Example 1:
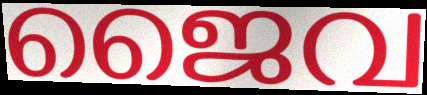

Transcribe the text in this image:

ജൈവ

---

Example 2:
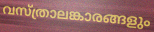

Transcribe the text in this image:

വസ്ത്രാലങ്കാരങ്ങളും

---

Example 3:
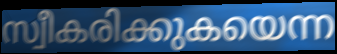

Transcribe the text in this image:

സ്വീകരിക്കുകയെന്ന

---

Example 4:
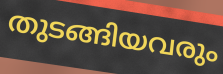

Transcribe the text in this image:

തുടങ്ങിയവരും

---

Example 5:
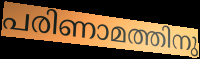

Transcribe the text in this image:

പരിണാമത്തിനു